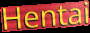
Hentai